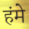
हंमे